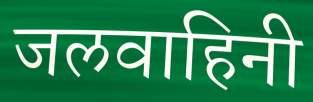
जलवाहिनी